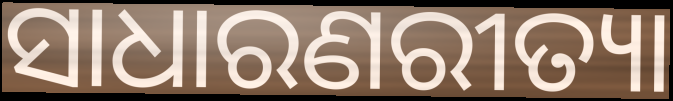
ସାଧାରଣରୀତ୍ୟା